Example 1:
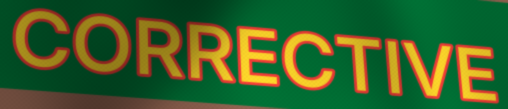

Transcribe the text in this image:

CORRECTIVE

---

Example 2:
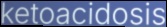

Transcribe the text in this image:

ketoacidosis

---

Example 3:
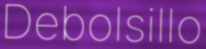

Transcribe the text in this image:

Debolsillo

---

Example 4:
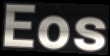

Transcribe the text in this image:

Eos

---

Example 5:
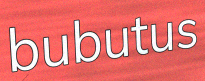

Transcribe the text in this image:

bubutus